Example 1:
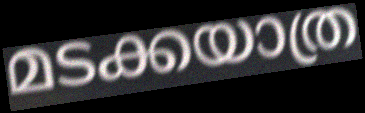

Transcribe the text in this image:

മടക്കയാത്ര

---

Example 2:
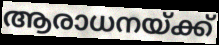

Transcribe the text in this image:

ആരാധനയ്ക്ക്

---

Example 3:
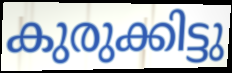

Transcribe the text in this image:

കുരുക്കിട്ടു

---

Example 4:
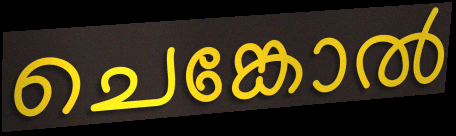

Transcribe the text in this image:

ചെങ്കോൽ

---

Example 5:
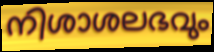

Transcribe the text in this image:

നിശാശലഭവും